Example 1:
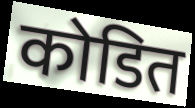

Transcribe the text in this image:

कोडित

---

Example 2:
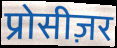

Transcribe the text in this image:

प्रोसीज़र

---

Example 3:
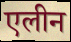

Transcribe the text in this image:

एलीन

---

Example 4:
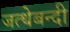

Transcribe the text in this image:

जत्थेबन्दी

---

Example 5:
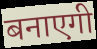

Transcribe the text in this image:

बनाएगी